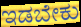
ಇಡಬೇಕು